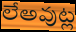
లేఅవుట్ల